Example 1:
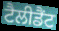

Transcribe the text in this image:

ਟੈਲੀਡੈਂਟ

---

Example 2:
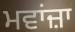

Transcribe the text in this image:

ਮਵਾਂਜ਼ਾ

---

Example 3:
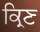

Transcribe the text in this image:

ਕ੍ਰਿਣ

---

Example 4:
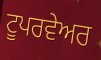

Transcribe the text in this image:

ਟੂਪਰਵੇਅਰ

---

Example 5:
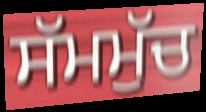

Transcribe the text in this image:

ਸੱਮਮੁੱਚ